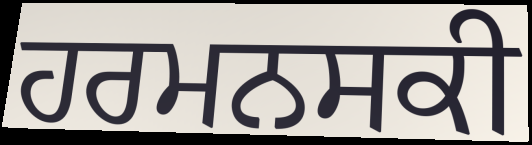
ਹਰਮਨਸਕੀ